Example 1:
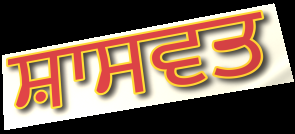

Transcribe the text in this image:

ਸ਼ਾਸਵਤ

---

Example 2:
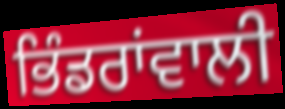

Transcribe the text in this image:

ਭਿੰਡਰਾਂਵਾਲੀ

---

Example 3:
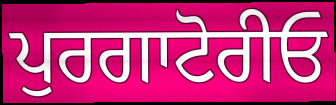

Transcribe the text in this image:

ਪੁਰਗਾਟੋਰੀਓ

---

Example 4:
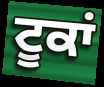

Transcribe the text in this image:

ਟੂਕਾਂ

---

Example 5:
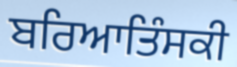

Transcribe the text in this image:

ਬਰਿਆਤਿੰਸਕੀ